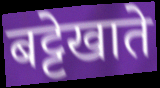
बट्टेखाते